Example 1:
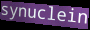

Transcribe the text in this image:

synuclein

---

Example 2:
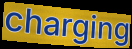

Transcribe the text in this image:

charging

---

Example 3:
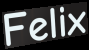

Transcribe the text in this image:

Felix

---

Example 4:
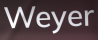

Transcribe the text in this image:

Weyer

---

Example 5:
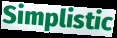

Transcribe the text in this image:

Simplistic